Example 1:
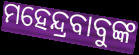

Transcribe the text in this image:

ମହେନ୍ଦ୍ରବାବୁଙ୍କ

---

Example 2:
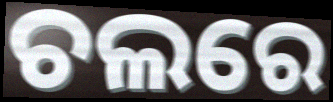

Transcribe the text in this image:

ଚଲରେ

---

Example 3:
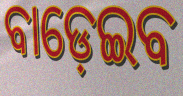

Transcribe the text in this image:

ବାଡ଼େଇବ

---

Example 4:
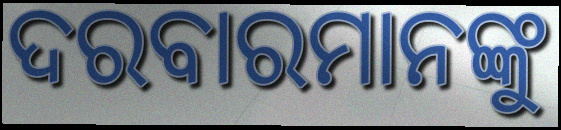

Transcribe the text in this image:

ଦରବାରମାନଙ୍କୁ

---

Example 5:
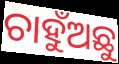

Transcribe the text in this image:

ଚାହୁଁଅଛୁ